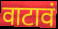
वाटावं